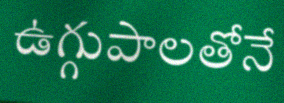
ఉగ్గుపాలతోనే